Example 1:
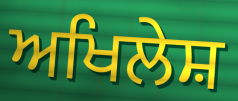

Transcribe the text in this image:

ਅਖਿਲੇਸ਼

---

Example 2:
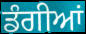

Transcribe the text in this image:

ਡੰਗੀਆਂ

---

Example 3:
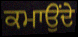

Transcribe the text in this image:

ਕਮਾਉਂਦੇ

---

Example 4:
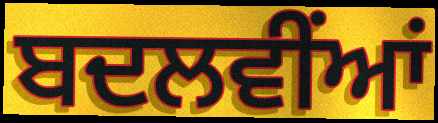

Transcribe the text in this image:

ਬਦਲਵੀਂਆਂ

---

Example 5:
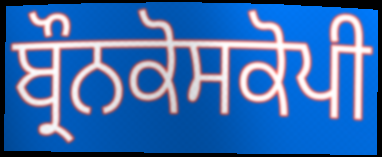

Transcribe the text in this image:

ਬ੍ਰੌਨਕੋਸਕੋਪੀ